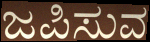
ಜಪಿಸುವ